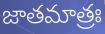
జాతమాత్రః